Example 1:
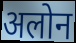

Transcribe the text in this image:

अलोन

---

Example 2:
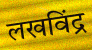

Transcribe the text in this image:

लखविंद्र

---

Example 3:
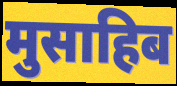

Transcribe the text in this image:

मुसाहिब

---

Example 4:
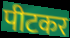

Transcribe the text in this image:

पीटकर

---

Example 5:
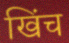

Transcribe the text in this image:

खिंच